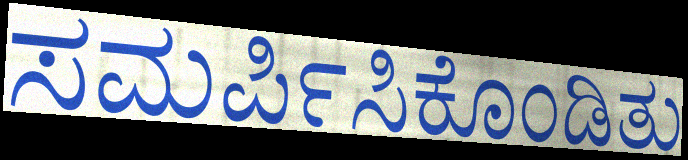
ಸಮರ್ಪಿಸಿಕೊಂಡಿತು